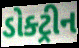
ડોક્ટ્રીન